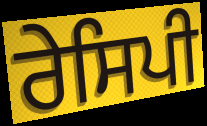
ਰੇਸਿਪੀ